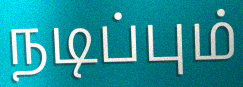
நடிப்பும்